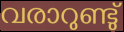
വരാറുണ്ടു്